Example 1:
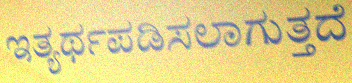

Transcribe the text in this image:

ಇತ್ಯರ್ಥಪಡಿಸಲಾಗುತ್ತದೆ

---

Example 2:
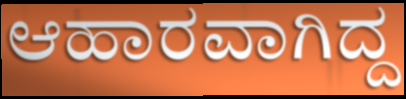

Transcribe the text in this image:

ಆಹಾರವಾಗಿದ್ದ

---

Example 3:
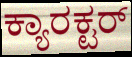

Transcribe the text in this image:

ಕ್ಯಾರಕ್ಟರ್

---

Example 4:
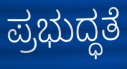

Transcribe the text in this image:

ಪ್ರಭುದ್ಧತೆ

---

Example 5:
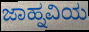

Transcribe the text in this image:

ಜಾಹ್ನವಿಯ